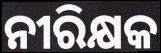
ନୀରିକ୍ଷକ